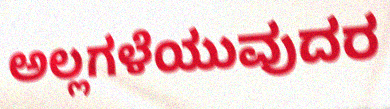
ಅಲ್ಲಗಳೆಯುವುದರ